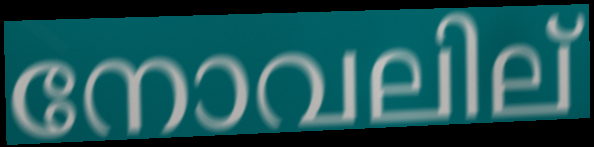
നോവലില്